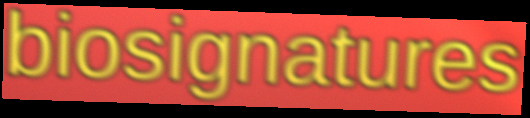
biosignatures